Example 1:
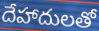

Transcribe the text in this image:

దేహాదులతో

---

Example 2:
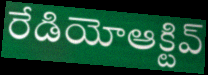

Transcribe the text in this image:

రేడియోఆక్టివ్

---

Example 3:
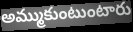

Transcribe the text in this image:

అమ్ముకుంటుంటారు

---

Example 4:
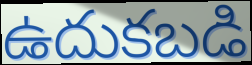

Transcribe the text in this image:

ఉదుకబడి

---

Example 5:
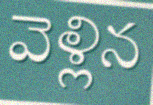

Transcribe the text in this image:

వెళ్లిన